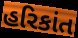
હરિકાંત